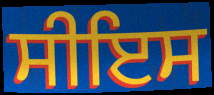
ਸੀਇਸ